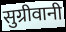
सुग्रीवानी